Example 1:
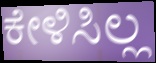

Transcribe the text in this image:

ಕೇಳಿಸಿಲ್ಲ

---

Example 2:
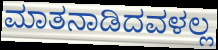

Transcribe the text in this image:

ಮಾತನಾಡಿದವಳಲ್ಲ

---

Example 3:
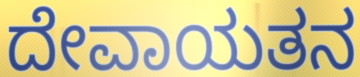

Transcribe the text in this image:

ದೇವಾಯತನ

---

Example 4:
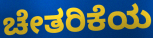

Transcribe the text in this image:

ಚೇತರಿಕೆಯ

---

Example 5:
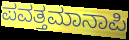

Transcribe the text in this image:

ಪವತ್ತಮಾನಾಪಿ